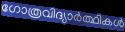
ഗോത്രവിദ്യാർത്ഥികൾ